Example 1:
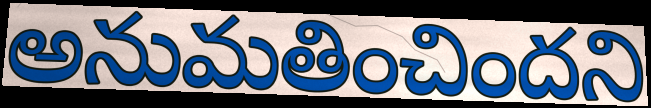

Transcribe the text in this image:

అనుమతించిందని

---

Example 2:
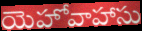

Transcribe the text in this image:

యెహోవాహాసు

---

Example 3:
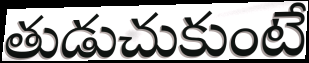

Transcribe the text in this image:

తుడుచుకుంటే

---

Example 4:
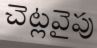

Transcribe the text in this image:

చెట్లవైపు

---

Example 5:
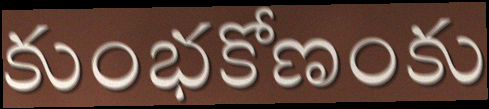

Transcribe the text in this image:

కుంభకోణంకు